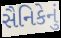
સૈનિકેનું